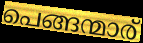
പെങ്ങന്മാര്